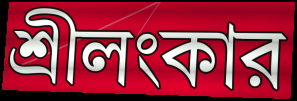
শ্রীলংকার